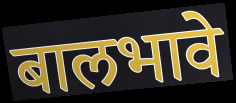
बालभावे